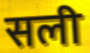
सली